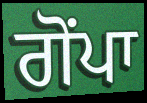
ਗੋਂਪਾ